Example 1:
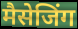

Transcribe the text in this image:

मैसेजिंग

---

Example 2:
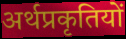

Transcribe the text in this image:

अर्थप्रकृतियों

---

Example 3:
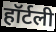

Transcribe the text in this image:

हॉर्टली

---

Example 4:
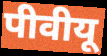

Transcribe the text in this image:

पीवीयू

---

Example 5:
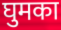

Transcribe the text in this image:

घुमका